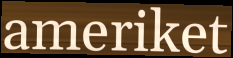
ameriket